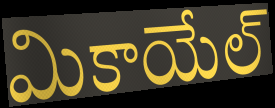
మికాయేల్